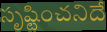
సృష్టించనిదే